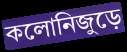
কলোনিজুড়ে